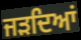
ਜੜਦਿਆਂ